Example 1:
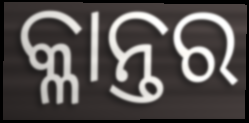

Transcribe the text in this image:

କ୍ଳାନ୍ତର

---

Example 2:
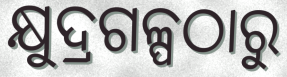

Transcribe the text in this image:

କ୍ଷୁଦ୍ରଗଳ୍ପଠାରୁ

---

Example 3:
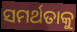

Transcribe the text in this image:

ସମର୍ଥତାକୁ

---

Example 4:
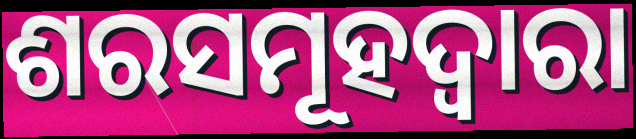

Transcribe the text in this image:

ଶରସମୂହଦ୍ୱାରା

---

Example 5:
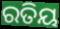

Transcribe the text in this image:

ରତିୟ